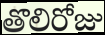
తొలిరోజు